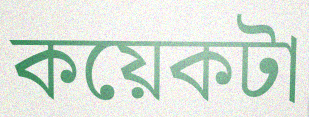
কয়েকটা